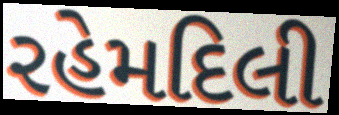
રહેમદિલી